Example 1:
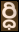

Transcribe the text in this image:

ర్ధి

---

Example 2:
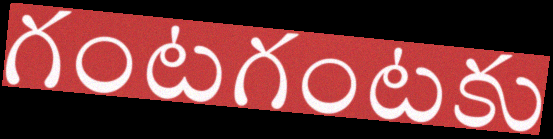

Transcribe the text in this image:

గంటగంటకు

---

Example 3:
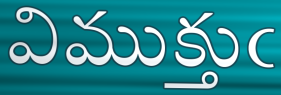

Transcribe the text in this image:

విముక్తుఁ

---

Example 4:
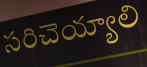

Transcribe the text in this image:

సరిచెయ్యాలి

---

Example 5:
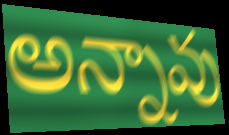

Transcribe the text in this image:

అన్నావు